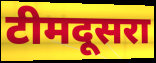
टीमदूसरा